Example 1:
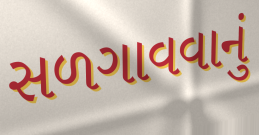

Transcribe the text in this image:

સળગાવવાનું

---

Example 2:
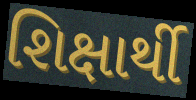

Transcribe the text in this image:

શિક્ષાર્થી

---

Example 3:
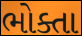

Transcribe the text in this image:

ભોક્તા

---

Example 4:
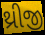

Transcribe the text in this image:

થ્રીજી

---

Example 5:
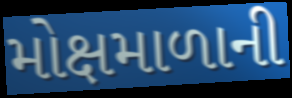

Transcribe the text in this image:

મોક્ષમાળાની